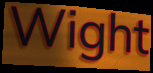
Wight